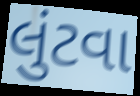
લુંટવા